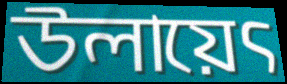
উলায়েৎ